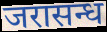
जरासन्ध